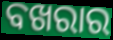
ବଖରାର